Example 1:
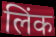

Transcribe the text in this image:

लिंक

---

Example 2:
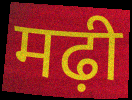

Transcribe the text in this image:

मढ़ी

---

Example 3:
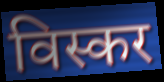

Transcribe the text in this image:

विस्कर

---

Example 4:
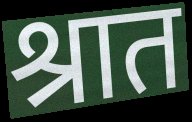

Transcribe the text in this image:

श्रात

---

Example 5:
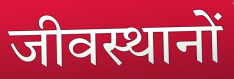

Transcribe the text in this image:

जीवस्थानों